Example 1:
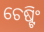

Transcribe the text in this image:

ଚେଷ୍ଟିଂ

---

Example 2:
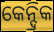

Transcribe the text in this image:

କେନ୍ଦ୍ରିକ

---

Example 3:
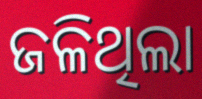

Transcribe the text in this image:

ଜଳିଥିଲା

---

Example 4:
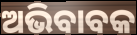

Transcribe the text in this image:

ଅଭିବାବକ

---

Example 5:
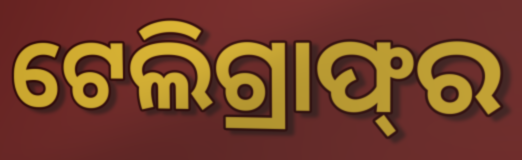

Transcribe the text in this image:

ଟେଲିଗ୍ରାଫ୍‌ର